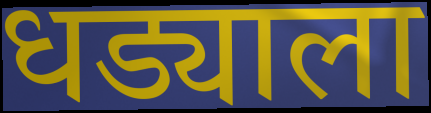
धड्याला